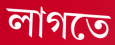
লাগতে